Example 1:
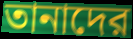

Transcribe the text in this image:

তানাদের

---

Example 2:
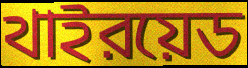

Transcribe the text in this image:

থাইরয়েড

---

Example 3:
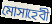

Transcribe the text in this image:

মোসাহেবী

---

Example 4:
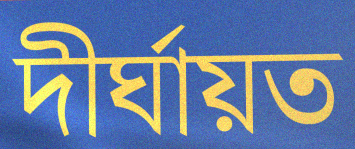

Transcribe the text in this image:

দীর্ঘায়ত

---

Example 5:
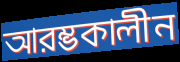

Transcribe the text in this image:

আরম্ভকালীন